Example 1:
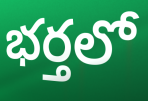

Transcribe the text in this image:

భర్తలో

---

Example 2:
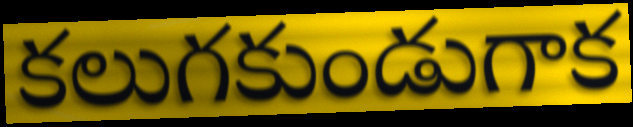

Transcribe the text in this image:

కలుగకుండుగాక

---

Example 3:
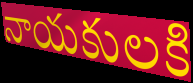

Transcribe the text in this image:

నాయకులకి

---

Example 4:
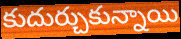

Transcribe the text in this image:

కుదుర్చుకున్నాయి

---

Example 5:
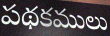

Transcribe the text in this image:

పథకములు